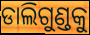
ଡାଲିଗୁଣ୍ଡକୁ